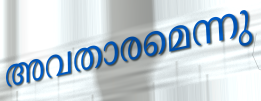
അവതാരമെന്നു